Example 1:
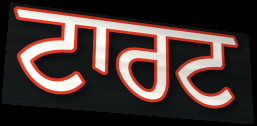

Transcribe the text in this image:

ਟਾਰਟ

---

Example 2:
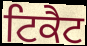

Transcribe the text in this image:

ਟਿਕੈਟ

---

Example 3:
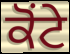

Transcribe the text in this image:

ਕੋਂਟੇ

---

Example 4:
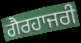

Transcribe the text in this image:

ਗੈਰਹਾਜਰੀ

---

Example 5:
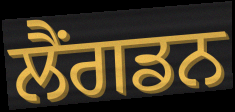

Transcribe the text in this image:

ਲੈਂਗਡਨ